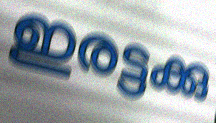
ഇരട്ടക്കു